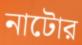
নাটোর